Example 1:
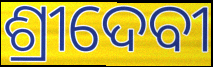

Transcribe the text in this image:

ଶ୍ରୀଦେବୀ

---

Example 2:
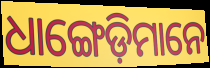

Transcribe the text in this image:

ଧାଙ୍ଗେଡ଼ିମାନେ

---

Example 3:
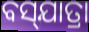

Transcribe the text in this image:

ବସ୍‌ଯାତ୍ରା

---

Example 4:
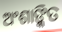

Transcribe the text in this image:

ଅଂଶାଙ୍କିତ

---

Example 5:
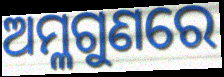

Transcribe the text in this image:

ଅମ୍ଳଗୁଣରେ